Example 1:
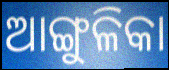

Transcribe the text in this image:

ଆଙ୍ଗୁଳିକା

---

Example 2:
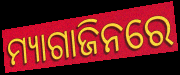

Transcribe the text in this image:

ମ୍ୟାଗାଜିନରେ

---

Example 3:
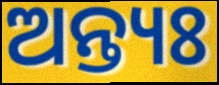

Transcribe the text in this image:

ଅନ୍ତ୍ୟଃ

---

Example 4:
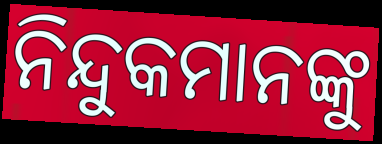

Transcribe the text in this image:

ନିନ୍ଦୁକମାନଙ୍କୁ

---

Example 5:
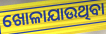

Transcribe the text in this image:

ଖୋଳାଯାଉଥିବା